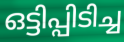
ഒട്ടിപ്പിടിച്ച